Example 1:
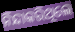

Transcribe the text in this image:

ନିନ୍ଦାକରିଥିଲେ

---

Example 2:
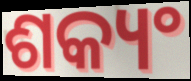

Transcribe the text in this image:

ଶକ୍ୟଂ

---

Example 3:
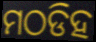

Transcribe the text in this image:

ମଠଡିହ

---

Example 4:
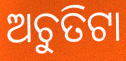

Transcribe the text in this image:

ଅଚୁତିଟା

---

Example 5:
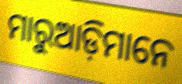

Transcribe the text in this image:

ମାରୁଆଡ଼ିମାନେ